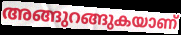
അങ്ങുറങ്ങുകയാണ്